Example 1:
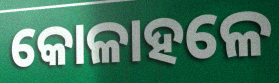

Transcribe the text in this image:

କୋଳାହଳେ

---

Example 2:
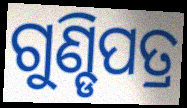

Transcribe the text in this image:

ଗୁଣ୍ଡିପତ୍ର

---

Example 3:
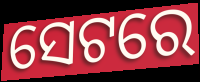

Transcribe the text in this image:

ସେଟରେ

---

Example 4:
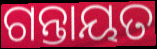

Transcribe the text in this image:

ଗନ୍ତାୟତ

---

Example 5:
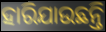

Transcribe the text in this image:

ହାରିଯାଉଛନ୍ତି